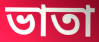
ভাতা